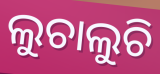
ଲୁଚାଲୁଚି